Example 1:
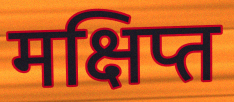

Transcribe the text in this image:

मक्षिप्त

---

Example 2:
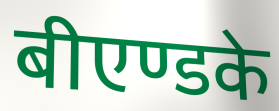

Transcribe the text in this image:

बीएण्डके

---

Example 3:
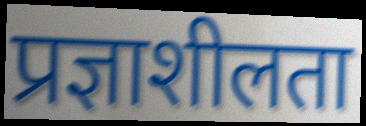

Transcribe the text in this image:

प्रज्ञाशीलता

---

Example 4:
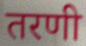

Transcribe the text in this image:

तरणी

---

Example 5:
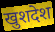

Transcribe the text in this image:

खुशदेश